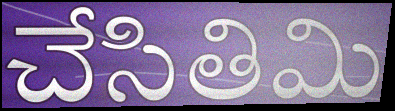
చేసితిమి